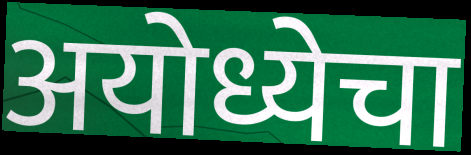
अयोध्येचा